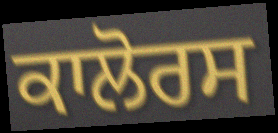
ਕਾਲੋਰਸ